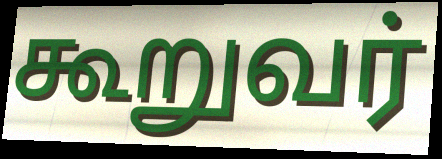
கூறுவர்